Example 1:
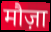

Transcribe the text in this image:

मौज़ा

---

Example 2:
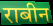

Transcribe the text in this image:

राबीन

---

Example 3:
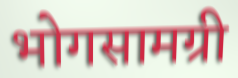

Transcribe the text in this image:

भोगसामग्री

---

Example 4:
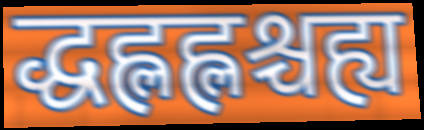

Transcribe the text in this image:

द्धह्लह्लश्चह्य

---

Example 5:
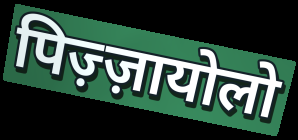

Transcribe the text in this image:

पिज़्ज़ायोलो